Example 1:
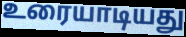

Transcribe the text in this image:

உரையாடியது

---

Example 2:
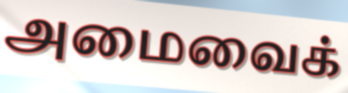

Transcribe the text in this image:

அமைவைக்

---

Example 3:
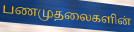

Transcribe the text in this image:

பணமுதலைகளின்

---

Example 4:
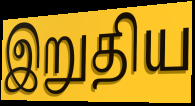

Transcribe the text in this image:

இறுதிய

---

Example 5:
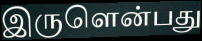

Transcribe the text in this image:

இருளென்பது